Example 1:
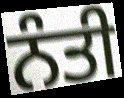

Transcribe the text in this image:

ਨੰਤੀ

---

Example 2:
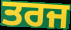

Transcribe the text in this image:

ਤਰਜ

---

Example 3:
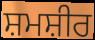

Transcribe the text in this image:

ਸ਼ਮਸ਼ੀਰ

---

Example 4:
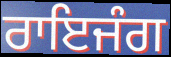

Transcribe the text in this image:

ਰਾਇਜੰਗ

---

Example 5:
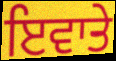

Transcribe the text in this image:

ਇਵਾਤੇ